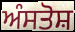
ਅੰਸਤੋਸ਼